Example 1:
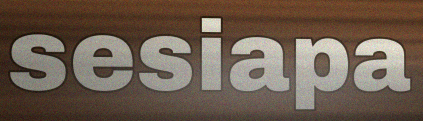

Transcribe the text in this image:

sesiapa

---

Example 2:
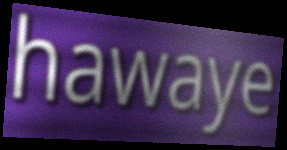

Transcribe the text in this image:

hawaye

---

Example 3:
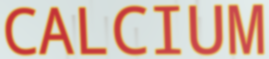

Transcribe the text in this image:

CALCIUM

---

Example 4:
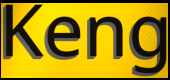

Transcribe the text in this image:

Keng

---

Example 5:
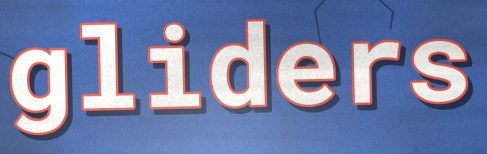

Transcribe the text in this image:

gliders